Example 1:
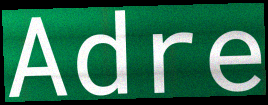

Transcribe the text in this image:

Adre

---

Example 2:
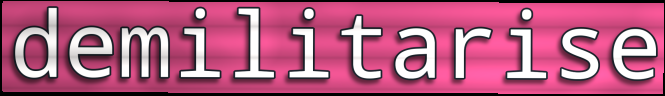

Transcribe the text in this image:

demilitarise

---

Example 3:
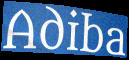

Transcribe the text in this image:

Adiba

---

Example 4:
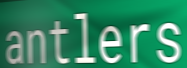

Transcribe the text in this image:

antlers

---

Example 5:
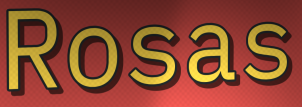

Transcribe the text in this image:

Rosas